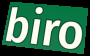
biro